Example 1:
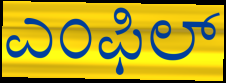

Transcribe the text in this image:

ಎಂಫಿಲ್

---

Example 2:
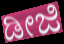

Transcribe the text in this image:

ಡೀಜಿ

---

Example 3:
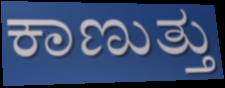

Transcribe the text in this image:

ಕಾಣುತ್ತು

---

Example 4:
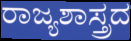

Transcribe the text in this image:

ರಾಜ್ಯಶಾಸ್ತ್ರದ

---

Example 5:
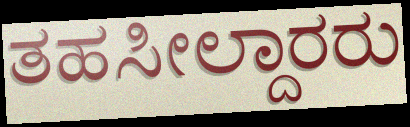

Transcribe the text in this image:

ತಹಸೀಲ್ದಾರರು